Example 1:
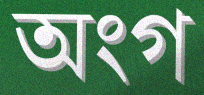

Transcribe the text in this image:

অংগ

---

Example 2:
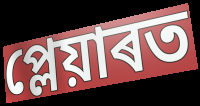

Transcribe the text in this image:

প্লেয়াৰত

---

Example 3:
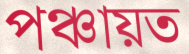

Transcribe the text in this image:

পঞ্চায়ত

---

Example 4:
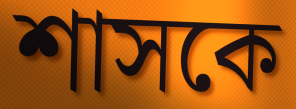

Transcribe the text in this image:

শাসকে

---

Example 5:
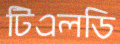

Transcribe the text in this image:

টিএলডি